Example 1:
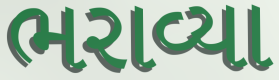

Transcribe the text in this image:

ભરાવ્યા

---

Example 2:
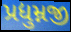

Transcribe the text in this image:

પ્રદ્યુમ્નજી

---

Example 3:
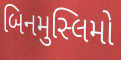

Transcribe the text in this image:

બિનમુસ્લિમો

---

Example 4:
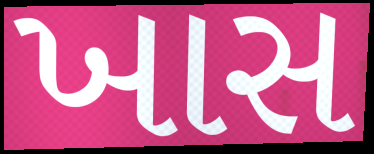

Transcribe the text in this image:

ખાસ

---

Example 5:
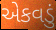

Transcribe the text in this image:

એકવડું